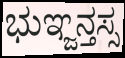
ಭುಞ್ಜನ್ತಸ್ಸ